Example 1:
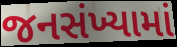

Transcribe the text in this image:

જનસંખ્યામાં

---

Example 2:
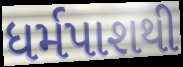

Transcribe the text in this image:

ધર્મપાશથી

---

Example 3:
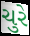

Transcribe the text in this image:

ચુરે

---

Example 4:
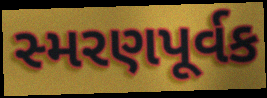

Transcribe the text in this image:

સ્મરણપૂર્વક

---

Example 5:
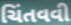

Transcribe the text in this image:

ચિંતવવી